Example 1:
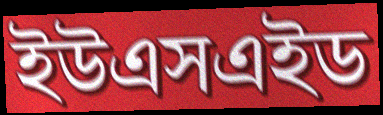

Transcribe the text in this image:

ইউএসএইড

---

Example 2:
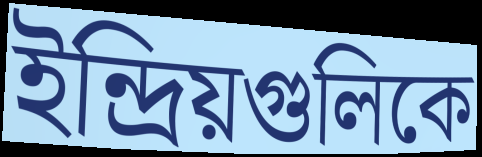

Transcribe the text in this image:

ইন্দ্রিয়গুলিকে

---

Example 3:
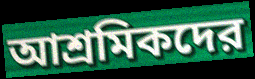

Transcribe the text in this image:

আশ্রমিকদের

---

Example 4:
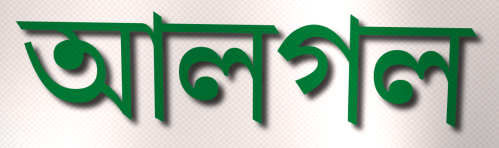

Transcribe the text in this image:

আলগল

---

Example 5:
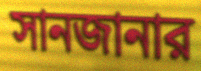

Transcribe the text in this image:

সানজানার